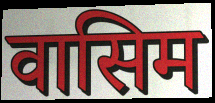
वासिम